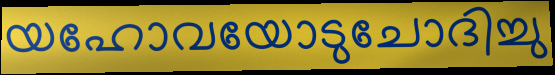
യഹോവയോടുചോദിച്ചു